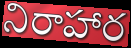
నిరాహార